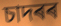
চাদৰৰ